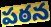
పఠన